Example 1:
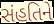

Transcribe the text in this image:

સંહતિને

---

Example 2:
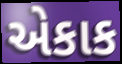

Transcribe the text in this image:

એકાક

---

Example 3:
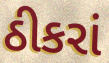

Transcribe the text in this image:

ઠીકરાં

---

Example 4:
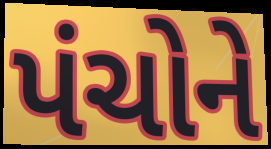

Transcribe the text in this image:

પંચોને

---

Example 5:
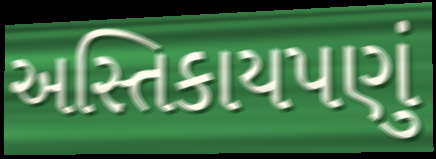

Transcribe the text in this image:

અસ્તિકાયપણું